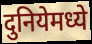
दुनियेमध्ये